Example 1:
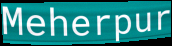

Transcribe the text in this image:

Meherpur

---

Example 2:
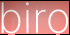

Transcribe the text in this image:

biro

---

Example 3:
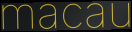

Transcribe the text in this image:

macau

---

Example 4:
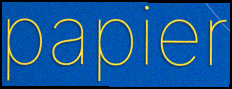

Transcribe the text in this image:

papier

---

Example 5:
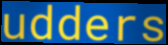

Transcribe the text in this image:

udders